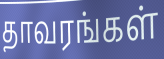
தாவரங்கள்